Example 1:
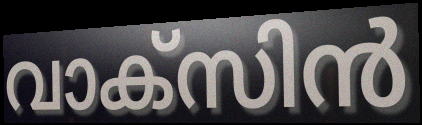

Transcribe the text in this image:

വാക്സിൻ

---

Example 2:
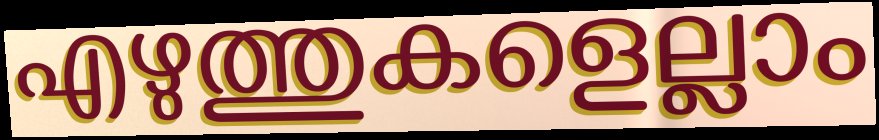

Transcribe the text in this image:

എഴുത്തുകളെല്ലാം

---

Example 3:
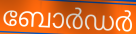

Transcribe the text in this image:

ബോർഡർ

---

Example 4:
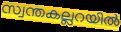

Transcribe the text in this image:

സ്വന്തകല്ലറയിൽ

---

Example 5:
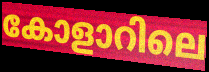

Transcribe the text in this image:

കോളാറിലെ